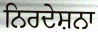
ਨਿਰਦੇਸ਼ਨਾ